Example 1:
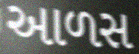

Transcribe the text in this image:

આળસ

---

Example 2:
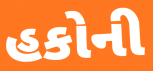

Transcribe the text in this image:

હકોની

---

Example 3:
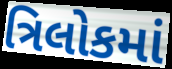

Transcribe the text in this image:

ત્રિલોકમાં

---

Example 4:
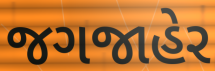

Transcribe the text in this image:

જગજાહેર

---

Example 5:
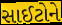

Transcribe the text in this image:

સાઈટોને